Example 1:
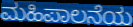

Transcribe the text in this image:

ಮಹಿಪಾಲನೆಯ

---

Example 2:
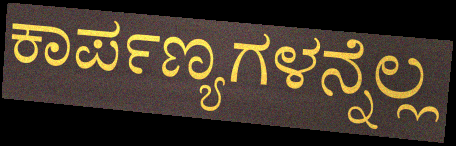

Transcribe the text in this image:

ಕಾರ್ಪಣ್ಯಗಳನ್ನೆಲ್ಲ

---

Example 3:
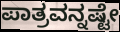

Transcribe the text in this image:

ಪಾತ್ರವನ್ನಷ್ಟೇ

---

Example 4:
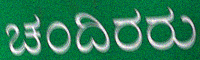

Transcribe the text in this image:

ಚಂದಿರರು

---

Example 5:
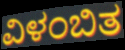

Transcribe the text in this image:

ವಿಳಂಬಿತ